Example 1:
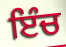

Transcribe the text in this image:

ਇੰਚ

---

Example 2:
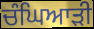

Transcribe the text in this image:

ਚੰਘਿਆੜੀ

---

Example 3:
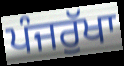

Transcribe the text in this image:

ਪੰਜਰੁੱਖਾ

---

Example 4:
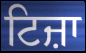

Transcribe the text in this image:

ਟਿਜ਼ਾ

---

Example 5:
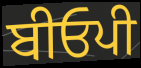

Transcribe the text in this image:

ਬੀਓਪੀ